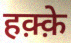
हक़्क़े